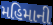
મહિમાની